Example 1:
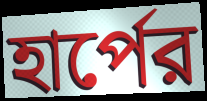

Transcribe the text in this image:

হার্পের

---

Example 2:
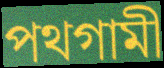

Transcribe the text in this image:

পথগামী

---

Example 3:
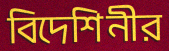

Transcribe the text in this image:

বিদেশিনীর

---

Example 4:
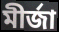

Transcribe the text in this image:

মীর্জা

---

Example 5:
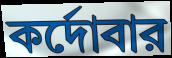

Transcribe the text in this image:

কর্দোবার